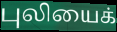
புலியைக்